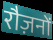
रौज़नों